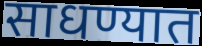
साधण्यात